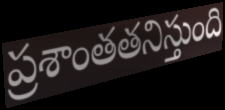
ప్రశాంతతనిస్తుంది